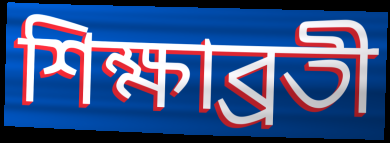
শিক্ষাব্রতী